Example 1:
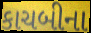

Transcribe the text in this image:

કાચબીના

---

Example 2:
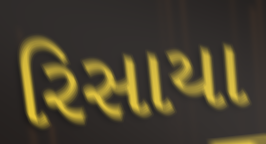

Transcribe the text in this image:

રિસાયા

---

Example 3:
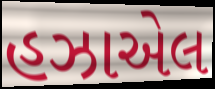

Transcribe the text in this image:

હઝાએલ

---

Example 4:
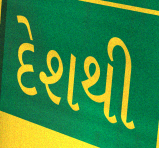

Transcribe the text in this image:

દેશથી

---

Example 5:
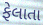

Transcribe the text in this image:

ફેલાતા